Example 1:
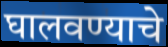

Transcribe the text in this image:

घालवण्याचे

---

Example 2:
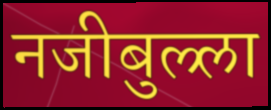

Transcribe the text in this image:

नजीबुल्ला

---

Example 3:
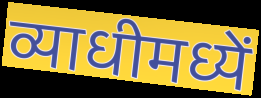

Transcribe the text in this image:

व्याधीमध्यें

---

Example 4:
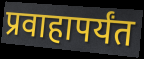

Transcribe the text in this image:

प्रवाहापर्यंत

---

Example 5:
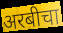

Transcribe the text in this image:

अरबीचा